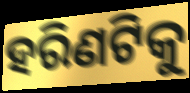
ହରିଣଟିକୁ